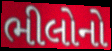
ભીલોનો